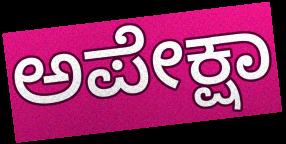
ಅಪೇಕ್ಷಾ